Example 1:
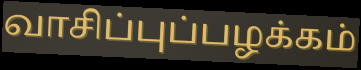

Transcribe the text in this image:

வாசிப்புப்பழக்கம்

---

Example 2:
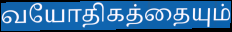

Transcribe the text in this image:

வயோதிகத்தையும்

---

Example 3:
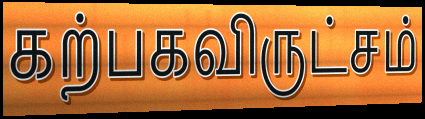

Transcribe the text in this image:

கற்பகவிருட்சம்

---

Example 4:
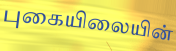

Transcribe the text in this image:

புகையிலையின்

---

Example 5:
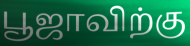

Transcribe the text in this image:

பூஜாவிற்கு